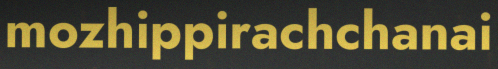
mozhippirachchanai